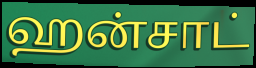
ஹன்சாட்